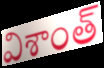
విశాంత్